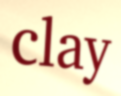
clay